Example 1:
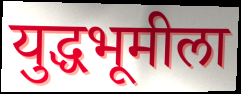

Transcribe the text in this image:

युद्धभूमीला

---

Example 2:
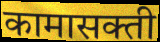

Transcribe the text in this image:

कामासक्ती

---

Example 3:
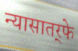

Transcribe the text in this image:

न्यासातर्फे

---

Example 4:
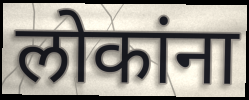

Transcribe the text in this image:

लोकांना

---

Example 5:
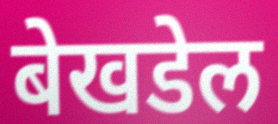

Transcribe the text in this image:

बेखडेल